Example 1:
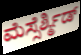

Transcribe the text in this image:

ಮೆಸ್ಸೆರ್ಶ್ಮಿಡ್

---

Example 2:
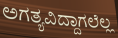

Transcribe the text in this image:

ಅಗತ್ಯವಿದ್ದಾಗಲೆಲ್ಲ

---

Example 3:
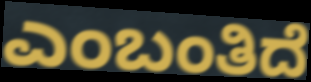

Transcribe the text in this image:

ಎಂಬಂತಿದೆ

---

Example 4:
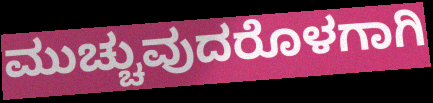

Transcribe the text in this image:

ಮುಚ್ಚುವುದರೊಳಗಾಗಿ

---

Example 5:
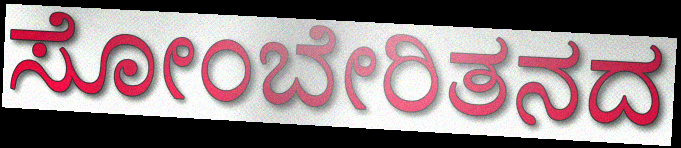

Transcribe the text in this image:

ಸೋಂಬೇರಿತನದ